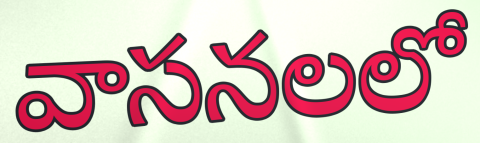
వాసనలలో